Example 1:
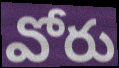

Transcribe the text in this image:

వోరు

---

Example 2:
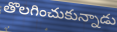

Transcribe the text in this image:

తొలగించుకున్నాడు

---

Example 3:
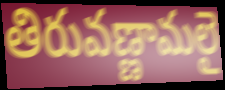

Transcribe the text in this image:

తిరువణ్ణామలై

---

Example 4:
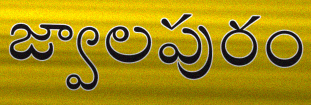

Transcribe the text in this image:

జ్వాలపురం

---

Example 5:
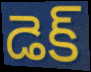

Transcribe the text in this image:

డెక్